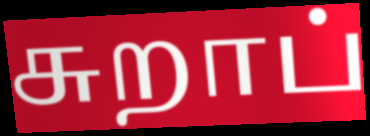
சுறாப்